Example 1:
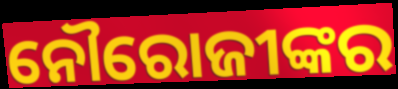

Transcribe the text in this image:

ନୌରୋଜୀଙ୍କର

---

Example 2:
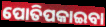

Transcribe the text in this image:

ପୋତିପକାଇବା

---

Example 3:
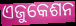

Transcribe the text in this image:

ଏଜୁକେଶନ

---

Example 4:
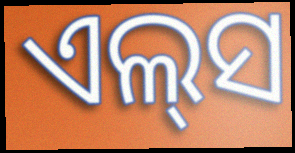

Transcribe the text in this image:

ଏଲ୍‌ସ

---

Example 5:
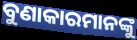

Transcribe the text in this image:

ବୁଣାକାରମାନଙ୍କୁ